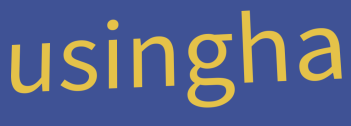
usingha